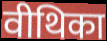
वीथिका